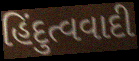
હિંદુત્વવાદી